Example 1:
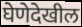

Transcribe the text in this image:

घेणेदेखील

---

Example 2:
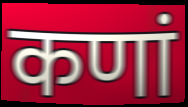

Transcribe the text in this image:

कणां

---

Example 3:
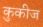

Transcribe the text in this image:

कुकीज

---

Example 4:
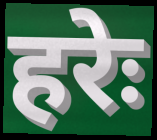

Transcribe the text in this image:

हरेः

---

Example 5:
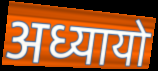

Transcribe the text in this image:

अध्यायो